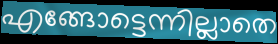
എങ്ങോട്ടെന്നില്ലാതെ